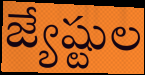
జ్యేష్టుల